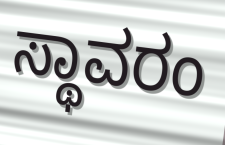
ಸ್ಥಾವರಂ